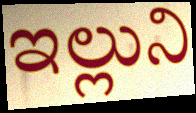
ఇల్లుని